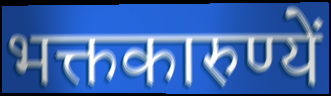
भक्तकारुण्यें